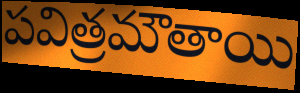
పవిత్రమౌతాయి